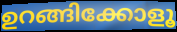
ഉറങ്ങിക്കോളൂ